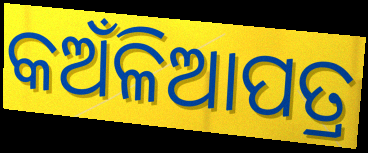
କଅଁଳିଆପତ୍ର